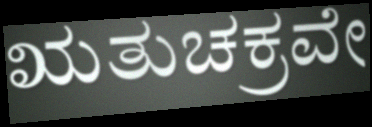
ಋತುಚಕ್ರವೇ